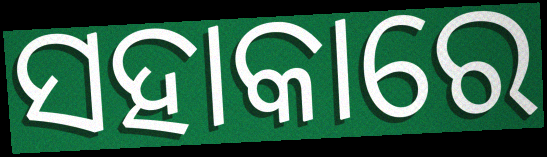
ସହାକାରେ